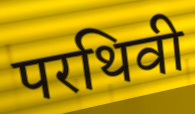
परथिवी